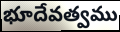
భూదేవత్వము